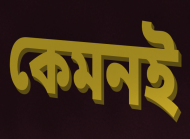
কেমনই